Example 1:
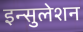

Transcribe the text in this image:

इन्सुलेशन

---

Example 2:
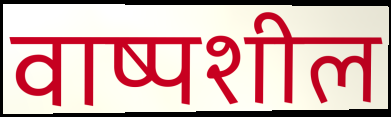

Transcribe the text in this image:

वाष्पशील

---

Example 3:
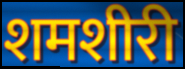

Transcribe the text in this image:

शमशीरी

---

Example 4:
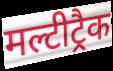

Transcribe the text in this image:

मल्टीट्रैक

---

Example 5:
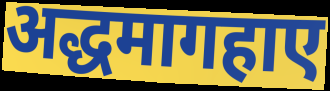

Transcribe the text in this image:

अद्धमागहाए